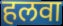
हलवा